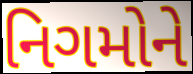
નિગમોને